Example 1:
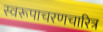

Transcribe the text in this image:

स्वरूपाचरणचारित्र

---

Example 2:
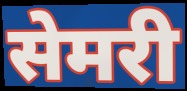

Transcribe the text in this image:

सेमरी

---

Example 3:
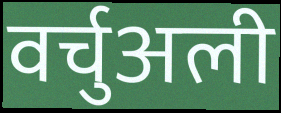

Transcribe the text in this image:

वर्चुअली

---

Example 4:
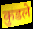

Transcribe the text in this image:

कुडले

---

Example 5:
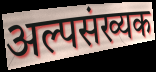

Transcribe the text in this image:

अल्पसंख्यक